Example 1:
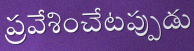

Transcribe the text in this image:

ప్రవేశించేటప్పుడు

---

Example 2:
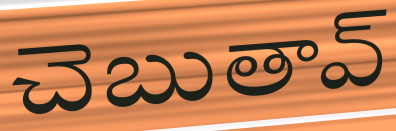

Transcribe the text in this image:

చెబుతావ్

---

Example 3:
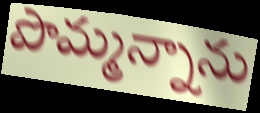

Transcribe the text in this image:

పొమ్మన్నాను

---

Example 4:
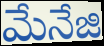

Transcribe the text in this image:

మేనేజి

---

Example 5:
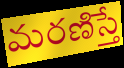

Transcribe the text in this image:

మరణిస్తే